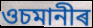
ওচমানীৰ